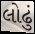
લોઢું